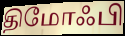
திமோஃபி